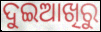
ଦୁଇଆଖିରୁ